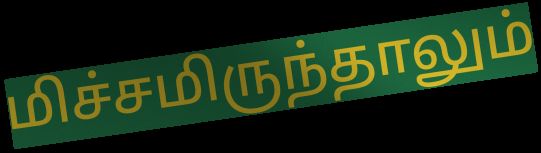
மிச்சமிருந்தாலும்